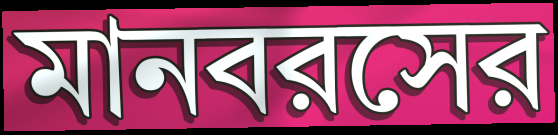
মানবরসের